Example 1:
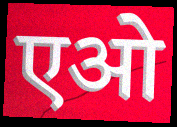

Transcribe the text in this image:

एओ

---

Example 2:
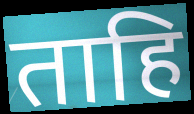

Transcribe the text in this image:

ताहि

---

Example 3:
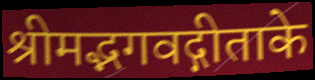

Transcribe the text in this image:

श्रीमद्भगवद्गीताके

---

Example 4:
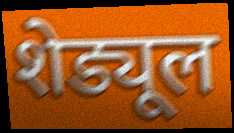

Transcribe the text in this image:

शेड्यूल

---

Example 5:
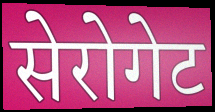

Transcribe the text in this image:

सेरोगेट